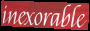
inexorable